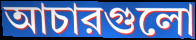
আচারগুলো